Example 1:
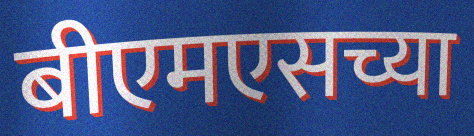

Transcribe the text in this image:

बीएमएसच्या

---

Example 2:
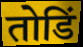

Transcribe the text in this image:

तोडिं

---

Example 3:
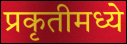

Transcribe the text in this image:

प्रकृतीमध्ये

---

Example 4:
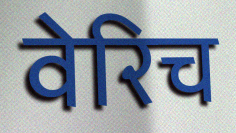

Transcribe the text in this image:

वेरिच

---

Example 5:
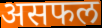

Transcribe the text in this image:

असफल